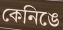
কেনিঙে